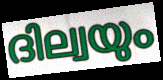
ദില്വയും